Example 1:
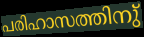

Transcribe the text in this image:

പരിഹാസത്തിനു്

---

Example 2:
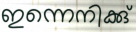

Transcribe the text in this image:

ഇന്നെനിക്കു്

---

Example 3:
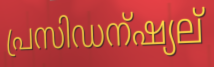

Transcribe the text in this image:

പ്രസിഡന്ഷ്യല്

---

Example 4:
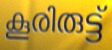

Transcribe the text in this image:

കൂരിരുട്ട്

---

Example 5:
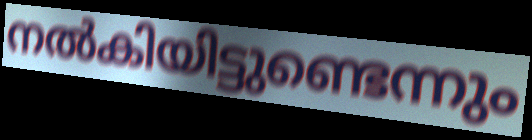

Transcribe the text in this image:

നൽകിയിട്ടുണ്ടെന്നും